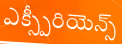
ఎక్స్పీరియెన్స్